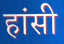
हांसी